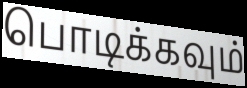
பொடிக்கவும்